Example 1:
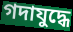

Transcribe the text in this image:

গদাযুদ্ধে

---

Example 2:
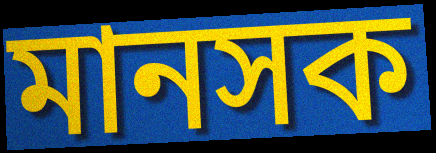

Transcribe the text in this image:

মানসক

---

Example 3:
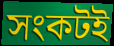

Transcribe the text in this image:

সংকটই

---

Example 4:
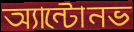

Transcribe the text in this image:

অ্যান্টোনভ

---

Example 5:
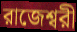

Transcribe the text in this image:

রাজেশ্বরী